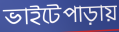
ভাইটেপাড়ায়